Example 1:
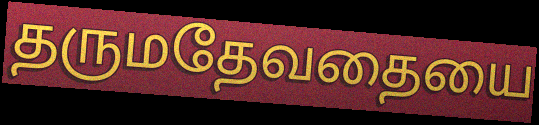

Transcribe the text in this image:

தருமதேவதையை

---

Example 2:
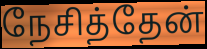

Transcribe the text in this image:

நேசித்தேன்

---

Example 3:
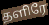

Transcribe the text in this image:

தளிரே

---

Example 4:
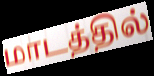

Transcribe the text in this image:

மாடத்தில்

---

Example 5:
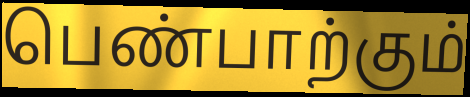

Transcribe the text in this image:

பெண்பாற்கும்